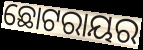
ଛୋଟରାୟର